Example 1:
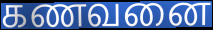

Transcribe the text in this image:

கணவனை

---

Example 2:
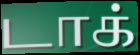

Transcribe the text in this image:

டாக்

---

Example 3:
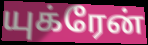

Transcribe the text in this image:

யுக்ரேன்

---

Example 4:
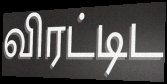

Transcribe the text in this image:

விரட்டிட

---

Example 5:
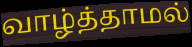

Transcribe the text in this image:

வாழ்த்தாமல்